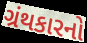
ગ્રંથકારનો